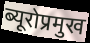
ब्यूरोप्रमुख